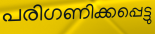
പരിഗണിക്കപ്പെട്ടു